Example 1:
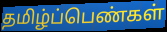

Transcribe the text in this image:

தமிழ்ப்பெண்கள்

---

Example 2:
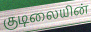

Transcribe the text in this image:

குடிலையின்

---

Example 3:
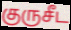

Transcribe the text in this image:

குருசீட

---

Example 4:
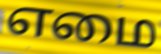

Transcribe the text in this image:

எமை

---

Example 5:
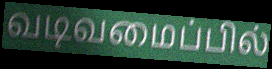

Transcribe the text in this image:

வடிவமைப்பில்